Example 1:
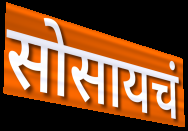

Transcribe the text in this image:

सोसायचं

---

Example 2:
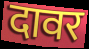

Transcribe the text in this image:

दावर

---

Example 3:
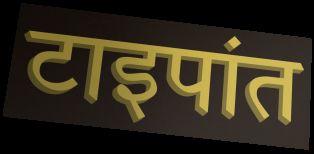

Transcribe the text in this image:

टाइपांत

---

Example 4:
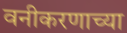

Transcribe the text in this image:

वनीकरणाच्या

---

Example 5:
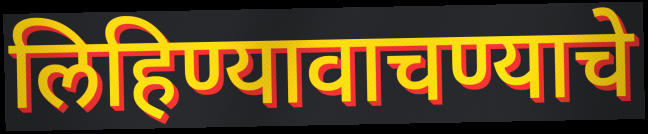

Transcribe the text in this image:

लिहिण्यावाचण्याचे